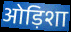
ओड़िशा